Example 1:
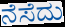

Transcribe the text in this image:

ನೆಸೆದು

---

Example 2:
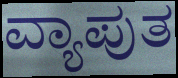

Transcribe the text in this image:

ವ್ಯಾಪುತ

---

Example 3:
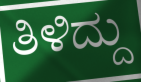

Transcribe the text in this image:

ತಿಳಿದ್ದು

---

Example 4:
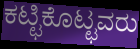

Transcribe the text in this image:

ಕಟ್ಟಿಕೊಟ್ಟವರು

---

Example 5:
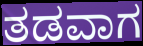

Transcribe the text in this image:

ತಡವಾಗ